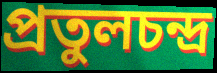
প্রতুলচন্দ্র